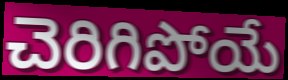
చెరిగిపోయే